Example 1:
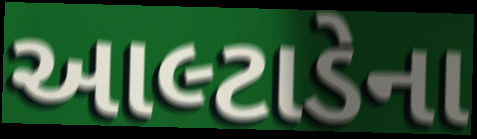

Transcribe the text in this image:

આલ્ટાડેના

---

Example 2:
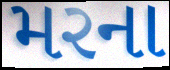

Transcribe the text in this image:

મરના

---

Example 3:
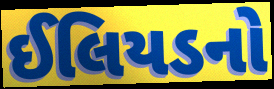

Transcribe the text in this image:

ઈલિયડનો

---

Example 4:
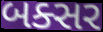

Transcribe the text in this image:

બક્સર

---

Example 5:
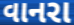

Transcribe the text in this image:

વાનરા